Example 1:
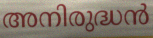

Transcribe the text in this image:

അനിരുദ്ധൻ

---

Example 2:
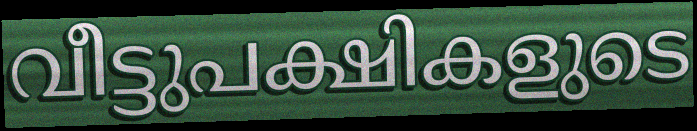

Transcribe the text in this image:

വീട്ടുപക്ഷികളുടെ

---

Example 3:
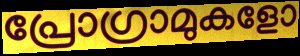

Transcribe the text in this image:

പ്രോഗ്രാമുകളോ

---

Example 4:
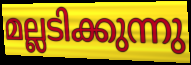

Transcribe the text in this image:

മല്ലടിക്കുന്നു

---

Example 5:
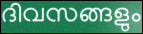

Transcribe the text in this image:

ദിവസങ്ങളും